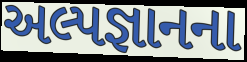
અલ્પજ્ઞાનના